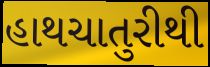
હાથચાતુરીથી